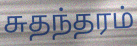
சுதந்தரம்